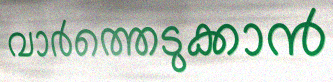
വാർത്തെടുക്കാൻ